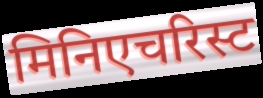
मिनिएचरिस्ट